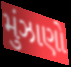
મુંઝાણો